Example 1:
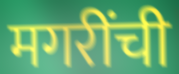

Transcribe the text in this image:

मगरींची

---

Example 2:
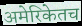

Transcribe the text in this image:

अमेरिकेतच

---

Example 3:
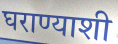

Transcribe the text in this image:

घराण्याशी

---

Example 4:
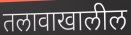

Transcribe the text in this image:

तलावाखालील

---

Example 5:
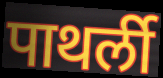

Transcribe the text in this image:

पाथर्ली